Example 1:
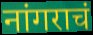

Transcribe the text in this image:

नांगराचं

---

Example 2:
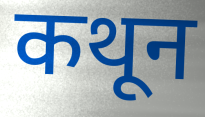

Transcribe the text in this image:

कथून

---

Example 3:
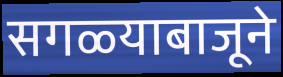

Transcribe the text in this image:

सगळ्याबाजूने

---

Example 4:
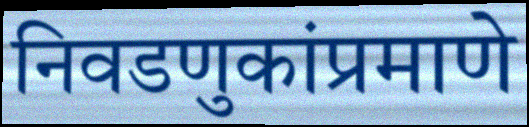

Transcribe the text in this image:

निवडणुकांप्रमाणे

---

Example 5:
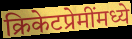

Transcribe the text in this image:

क्रिकेटप्रेमींमध्ये